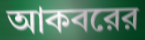
আকবরের